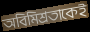
অবিমিশ্রতাকেই